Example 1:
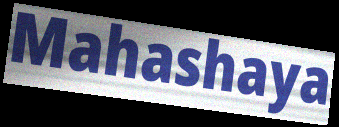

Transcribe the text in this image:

Mahashaya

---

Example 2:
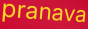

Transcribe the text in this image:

pranava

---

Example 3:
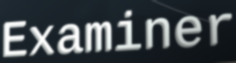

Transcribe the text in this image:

Examiner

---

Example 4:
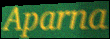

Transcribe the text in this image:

Aparna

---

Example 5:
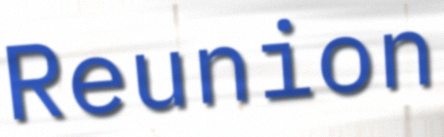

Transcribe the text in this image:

Reunion